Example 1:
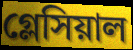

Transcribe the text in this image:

গ্লেসিয়াল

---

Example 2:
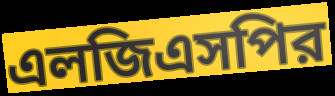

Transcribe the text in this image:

এলজিএসপির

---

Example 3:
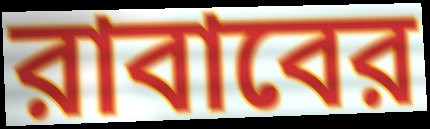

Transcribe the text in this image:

রাবাবের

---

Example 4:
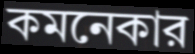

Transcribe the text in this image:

কমনেকার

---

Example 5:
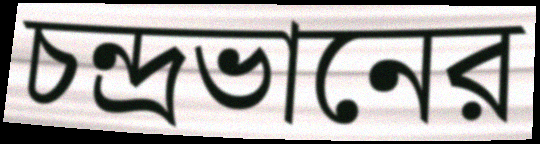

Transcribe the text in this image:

চন্দ্রভানের